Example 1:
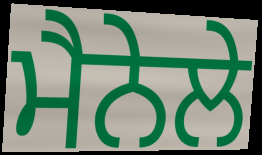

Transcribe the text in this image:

ਮੈਨੇਲੇ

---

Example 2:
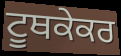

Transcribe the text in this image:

ਟੂਥਕੇਕਰ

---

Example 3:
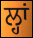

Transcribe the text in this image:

ਲ੍ਹਾਂ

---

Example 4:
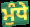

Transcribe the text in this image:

ਮੁੰਧੇ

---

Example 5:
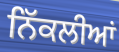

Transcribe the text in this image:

ਨਿੱਕਲੀਆਂ